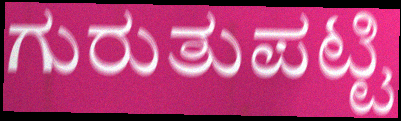
ಗುರುತುಪಟ್ಟಿ